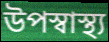
উপস্বাস্থ্য